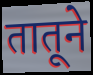
तातूने